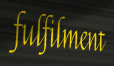
fulfilment